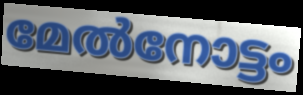
മേൽനോട്ടം